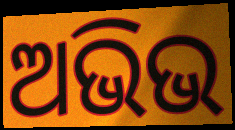
ଅଭିଭ